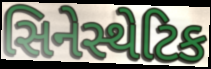
સિનેસ્થેટિક